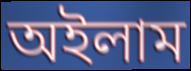
অইলাম